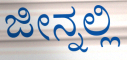
ಜೀನ್ನಲ್ಲಿ